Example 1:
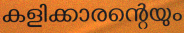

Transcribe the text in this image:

കളിക്കാരന്റെയും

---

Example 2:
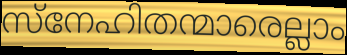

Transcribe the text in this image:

സ്നേഹിതന്മാരെല്ലാം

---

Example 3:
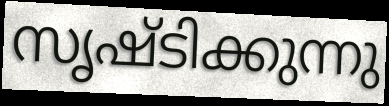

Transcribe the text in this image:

സൃഷ്ടിക്കുന്നു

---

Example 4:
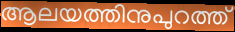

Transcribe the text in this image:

ആലയത്തിനുപുറത്ത്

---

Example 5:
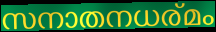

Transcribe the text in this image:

സനാതനധര്മം